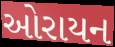
ઓરાયન